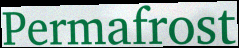
Permafrost